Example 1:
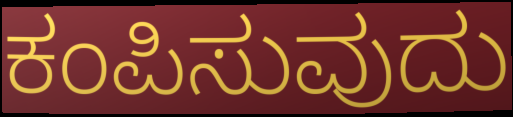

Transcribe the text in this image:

ಕಂಪಿಸುವುದು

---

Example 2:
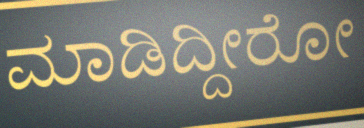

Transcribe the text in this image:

ಮಾಡಿದ್ದೀರೋ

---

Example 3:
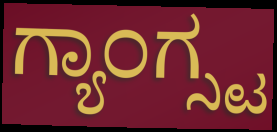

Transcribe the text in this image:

ಗ್ಯಾಂಗ್ಸ್ಟ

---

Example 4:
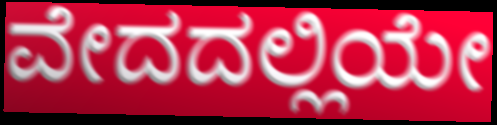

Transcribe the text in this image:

ವೇದದಲ್ಲಿಯೇ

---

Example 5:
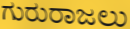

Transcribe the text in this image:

ಗುರುರಾಜಲು